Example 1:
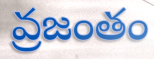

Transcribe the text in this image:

వ్రజంతం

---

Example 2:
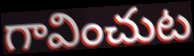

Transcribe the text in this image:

గావించుట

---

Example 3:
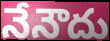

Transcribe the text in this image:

నేనౌదు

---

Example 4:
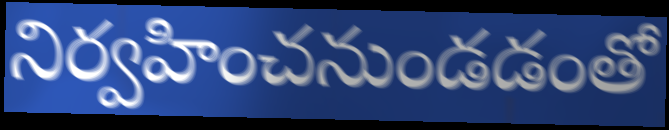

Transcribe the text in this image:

నిర్వహించనుండడంతో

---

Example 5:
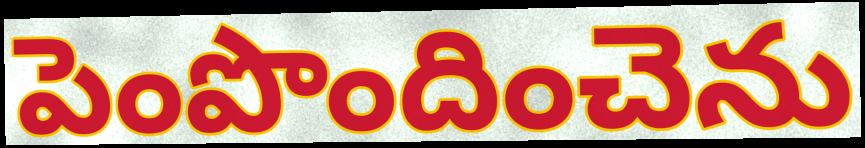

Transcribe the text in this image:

పెంపొందించెను